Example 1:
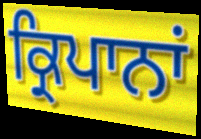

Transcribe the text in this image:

ਕ੍ਰਿਪਾਨਾਂ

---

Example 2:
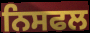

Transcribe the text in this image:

ਨਿਸਫਲ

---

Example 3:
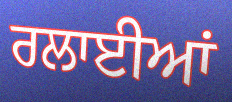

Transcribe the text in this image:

ਰਲਾਈਆਂ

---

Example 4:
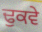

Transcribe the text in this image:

ਢੁਕਵੇ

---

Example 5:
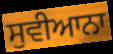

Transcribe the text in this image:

ਸੁਵੀਆਨਾ